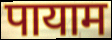
पायाम